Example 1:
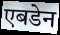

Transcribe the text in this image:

एबडेन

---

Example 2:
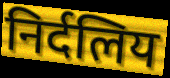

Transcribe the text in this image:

निर्दलिय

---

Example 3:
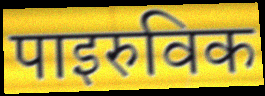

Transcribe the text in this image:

पाइरुविक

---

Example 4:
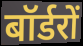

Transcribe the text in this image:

बॉर्डरों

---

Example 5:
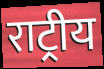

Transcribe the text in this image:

राट्रीय